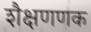
शैक्षणणक